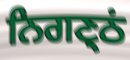
ਨਿਗਣ੍ਠਂ